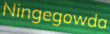
Ningegowda